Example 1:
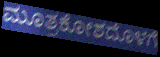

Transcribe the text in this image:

ಮೂತ್ರಕೋಶದೊಳಗೆ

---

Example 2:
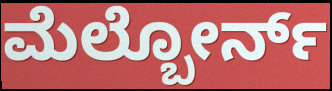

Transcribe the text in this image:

ಮೆಲ್ಬೋರ್ನ್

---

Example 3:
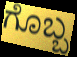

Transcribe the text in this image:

ಗೊಬ್ಬ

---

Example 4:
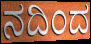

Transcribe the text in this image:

ನದಿಂದ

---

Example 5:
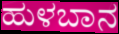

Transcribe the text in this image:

ಹುಳಬಾನ